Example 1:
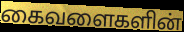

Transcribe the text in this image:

கைவளைகளின்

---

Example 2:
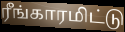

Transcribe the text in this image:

ரீங்காரமிட்டு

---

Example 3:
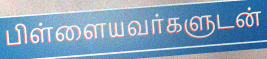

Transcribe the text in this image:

பிள்ளையவர்களுடன்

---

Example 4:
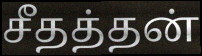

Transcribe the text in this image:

சீதத்தன்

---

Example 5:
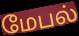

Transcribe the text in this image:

மேபல்